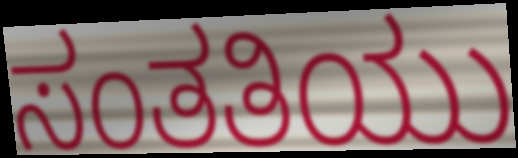
ಸಂತತಿಯು